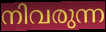
നിവരുന്ന